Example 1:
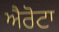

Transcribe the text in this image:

ਐਰੋਟਾ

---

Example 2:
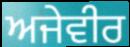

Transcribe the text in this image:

ਅਜੇਵੀਰ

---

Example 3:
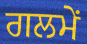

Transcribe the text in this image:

ਗਲਮੇਂ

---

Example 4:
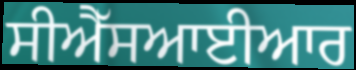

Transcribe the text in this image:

ਸੀਐੱਸਆਈਆਰ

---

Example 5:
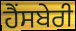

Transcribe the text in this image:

ਹੈਂਸਬੇਰੀ